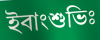
ইবাংশুভিঃ